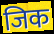
जिक